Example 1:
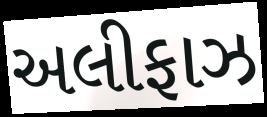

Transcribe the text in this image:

અલીફાઝ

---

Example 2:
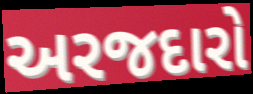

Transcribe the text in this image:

અરજદારો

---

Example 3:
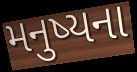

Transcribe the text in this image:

મનુષ્યના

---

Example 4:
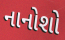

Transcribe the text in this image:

નાનોશો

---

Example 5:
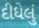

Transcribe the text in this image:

દીધેલું